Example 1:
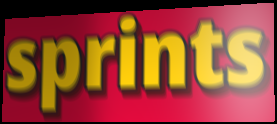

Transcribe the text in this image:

sprints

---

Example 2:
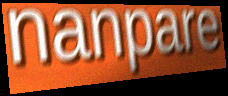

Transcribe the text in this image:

nanpare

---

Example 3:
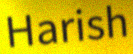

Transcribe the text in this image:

Harish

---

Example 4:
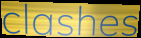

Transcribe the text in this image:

clashes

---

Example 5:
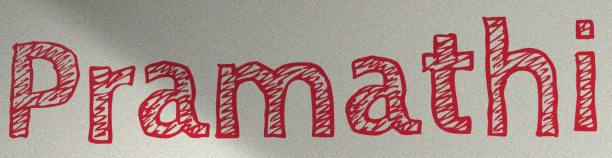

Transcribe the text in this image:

Pramathi